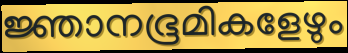
ജ്ഞാനഭൂമികളേഴും